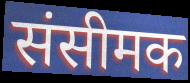
संसीमक